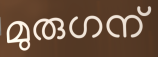
മുരുഗന്